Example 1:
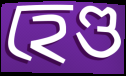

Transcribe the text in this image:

হেণ্ড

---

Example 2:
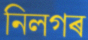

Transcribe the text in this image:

নিলগৰ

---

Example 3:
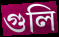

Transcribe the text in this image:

গুলি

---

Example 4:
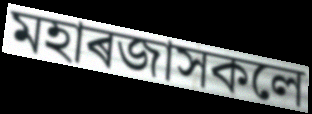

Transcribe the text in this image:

মহাৰজাসকলে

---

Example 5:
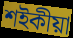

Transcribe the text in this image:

শইকীয়া